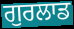
ਗੁਰਲਾਡ